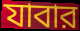
যাবার